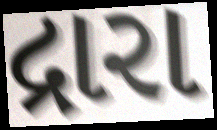
દ્રારા